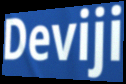
Deviji